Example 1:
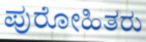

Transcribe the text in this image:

ಪುರೋಹಿತರು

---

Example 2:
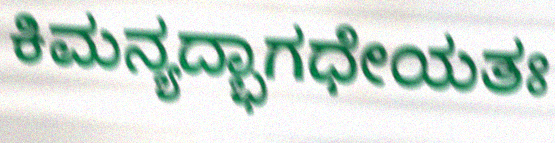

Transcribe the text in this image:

ಕಿಮನ್ಯದ್ಭಾಗಧೇಯತಃ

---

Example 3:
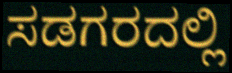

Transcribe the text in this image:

ಸಡಗರದಲ್ಲಿ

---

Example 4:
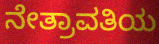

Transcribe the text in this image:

ನೇತ್ರಾವತಿಯ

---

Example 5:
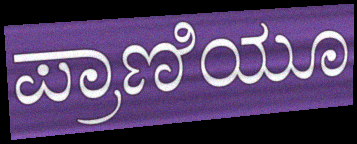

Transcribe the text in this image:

ಪ್ರಾಣಿಯೂ